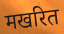
मखरित